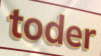
toder